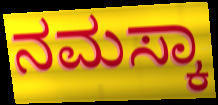
ನಮಸ್ಕಾ